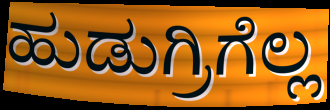
ಹುಡುಗ್ರಿಗೆಲ್ಲ